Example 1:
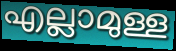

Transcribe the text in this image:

എല്ലാമുള്ള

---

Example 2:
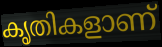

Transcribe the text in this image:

കൃതികളാണ്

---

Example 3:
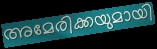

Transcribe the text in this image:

അമേരിക്കയുമായി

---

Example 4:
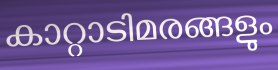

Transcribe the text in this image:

കാറ്റാടിമരങ്ങളും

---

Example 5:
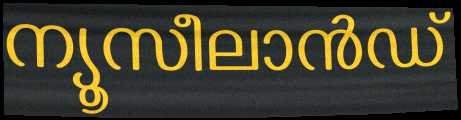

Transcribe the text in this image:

ന്യൂസീലാൻഡ്